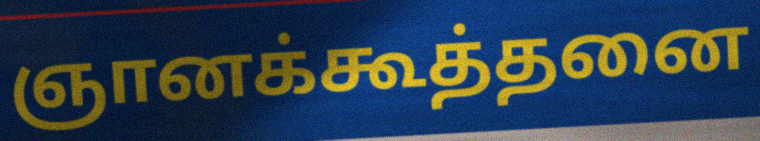
ஞானக்கூத்தனை